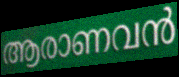
ആരാണവൻ